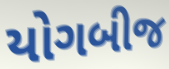
યોગબીજ